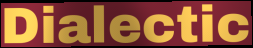
Dialectic